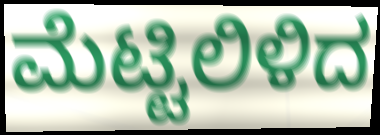
ಮೆಟ್ಟಿಲಿಳಿದ